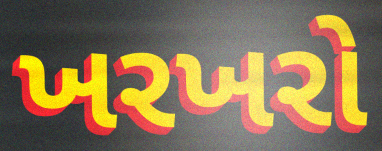
ખરખરો